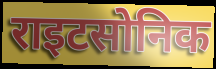
राइटसोनिक